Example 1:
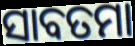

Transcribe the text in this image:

ସାବତମା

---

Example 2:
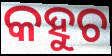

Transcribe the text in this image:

କହୁଚ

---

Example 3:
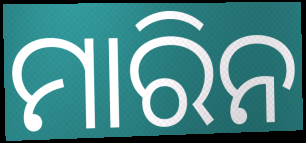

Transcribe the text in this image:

ମାରିନ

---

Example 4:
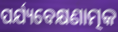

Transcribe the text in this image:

ପର୍ଯ୍ୟବେକ୍ଷଣାତ୍ମକ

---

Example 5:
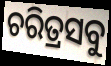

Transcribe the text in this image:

ଚରିତ୍ରସବୁ